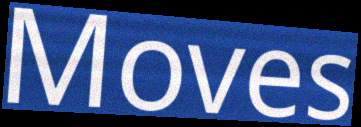
Moves